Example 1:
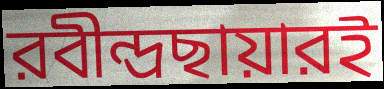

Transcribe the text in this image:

রবীন্দ্রছায়ারই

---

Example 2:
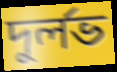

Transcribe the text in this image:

দুর্লভ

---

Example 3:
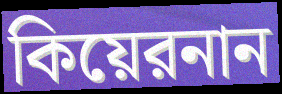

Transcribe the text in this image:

কিয়েরনান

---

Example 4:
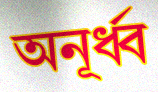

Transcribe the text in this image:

অনূর্ধ্ব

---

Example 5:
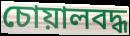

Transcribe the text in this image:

চোয়ালবদ্ধ